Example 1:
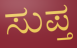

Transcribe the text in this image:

ಸುಪ್ತ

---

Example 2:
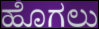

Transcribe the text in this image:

ಹೊಗಲು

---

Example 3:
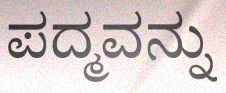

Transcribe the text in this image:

ಪದ್ಮವನ್ನು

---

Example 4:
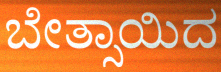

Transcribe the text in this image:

ಬೇತ್ಸಾಯಿದ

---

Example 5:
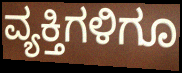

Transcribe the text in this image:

ವ್ಯಕ್ತಿಗಳಿಗೂ